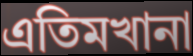
এতিমখানা